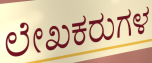
ಲೇಖಕರುಗಳ